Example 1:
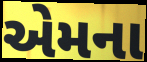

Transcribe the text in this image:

એમના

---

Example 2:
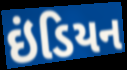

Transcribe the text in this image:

ઇંડિયન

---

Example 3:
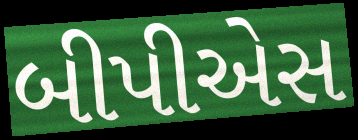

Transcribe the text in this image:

બીપીએસ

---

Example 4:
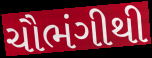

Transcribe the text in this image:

ચૌભંગીથી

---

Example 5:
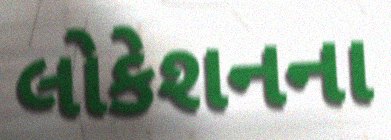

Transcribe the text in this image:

લોકેશનના